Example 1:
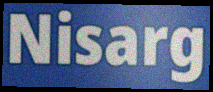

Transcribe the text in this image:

Nisarg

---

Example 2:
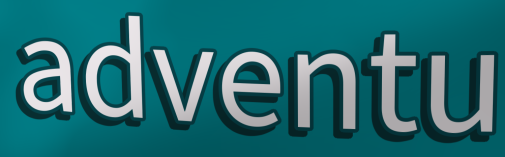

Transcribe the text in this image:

adventu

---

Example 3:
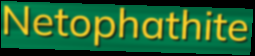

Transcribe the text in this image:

Netophathite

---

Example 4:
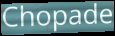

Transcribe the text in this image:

Chopade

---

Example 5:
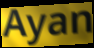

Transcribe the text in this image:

Ayan